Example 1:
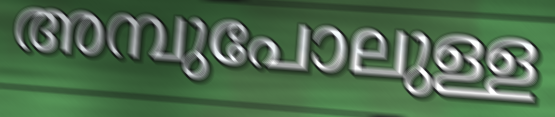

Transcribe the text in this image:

അമ്പുപോലുള്ള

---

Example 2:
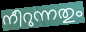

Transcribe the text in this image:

നീറുന്നതും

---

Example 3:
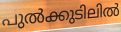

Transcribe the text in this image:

പുൽക്കുടിലിൽ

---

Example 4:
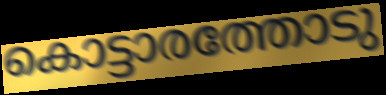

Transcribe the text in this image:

കൊട്ടാരത്തോടു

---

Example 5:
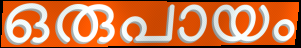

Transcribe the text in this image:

ഒരുപായം